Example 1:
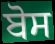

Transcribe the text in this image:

ਬੋਸ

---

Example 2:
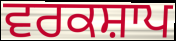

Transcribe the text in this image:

ਵਰਕਸ਼ਾਪ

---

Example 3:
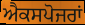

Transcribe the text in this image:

ਐਕਸਪੋਜਰਾਂ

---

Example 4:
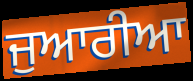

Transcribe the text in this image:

ਜੁਆਰੀਆ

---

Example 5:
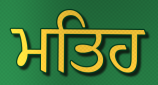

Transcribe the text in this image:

ਮਤਿਹ